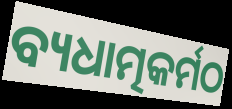
ବ୍ୟଧାତ୍ମକର୍ମଠ